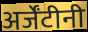
अर्जेंटीनी